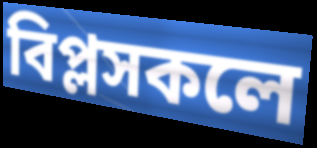
বিপ্লসকলে